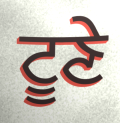
ਟੂਣੇ